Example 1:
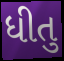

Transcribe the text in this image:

ધીતુ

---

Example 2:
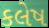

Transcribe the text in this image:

કલેષ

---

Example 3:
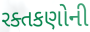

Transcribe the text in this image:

રક્તકણોની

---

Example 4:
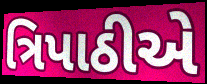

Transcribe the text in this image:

ત્રિપાઠીએ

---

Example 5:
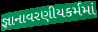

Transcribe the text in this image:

જ્ઞાનાવરણીયકર્મમાં